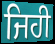
ਜਿਹੀ